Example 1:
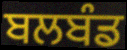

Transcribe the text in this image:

ਬਲਬੰਡ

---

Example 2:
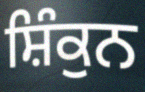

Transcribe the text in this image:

ਸ਼ਿੰਕੁਨ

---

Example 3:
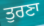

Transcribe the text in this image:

ਤੁਰਣਾ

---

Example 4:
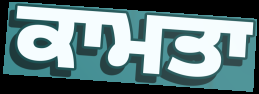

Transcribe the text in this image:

ਕਾਮਤਾ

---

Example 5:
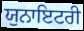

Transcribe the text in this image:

ਯੁਨਾਇਟਰੀ